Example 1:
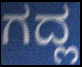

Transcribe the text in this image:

ಗದ್ಲ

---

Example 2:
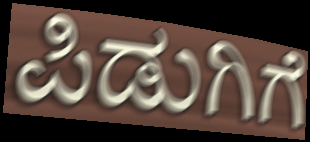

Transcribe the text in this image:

ಪಿಡುಗಿಗೆ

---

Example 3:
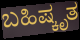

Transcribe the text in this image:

ಬಹಿಷ್ಕೃತ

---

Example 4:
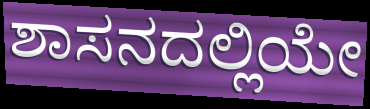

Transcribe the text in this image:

ಶಾಸನದಲ್ಲಿಯೇ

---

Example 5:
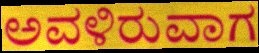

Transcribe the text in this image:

ಅವಳಿರುವಾಗ